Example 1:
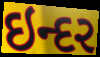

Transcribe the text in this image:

ઇન્દર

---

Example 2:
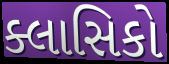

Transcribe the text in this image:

ક્લાસિકો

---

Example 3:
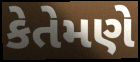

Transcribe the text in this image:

કેતેમણે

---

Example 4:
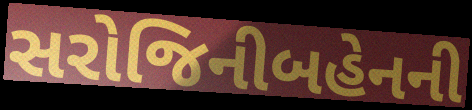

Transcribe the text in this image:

સરોજિનીબહેનની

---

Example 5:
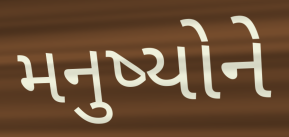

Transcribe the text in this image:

મનુષ્યોને